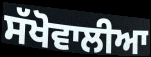
ਸੱਖੋਵਾਲੀਆ